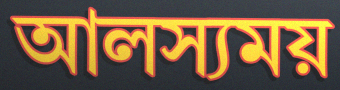
আলস্যময়